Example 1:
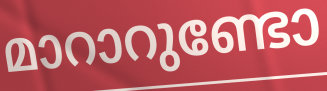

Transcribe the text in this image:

മാറാറുണ്ടോ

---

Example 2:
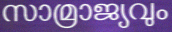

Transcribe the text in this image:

സാമ്രാജ്യവും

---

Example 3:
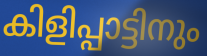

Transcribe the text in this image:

കിളിപ്പാട്ടിനും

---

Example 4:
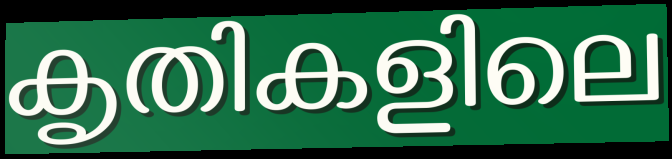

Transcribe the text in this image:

കൃതികളിലെ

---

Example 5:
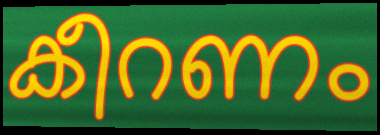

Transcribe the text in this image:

കീറണം